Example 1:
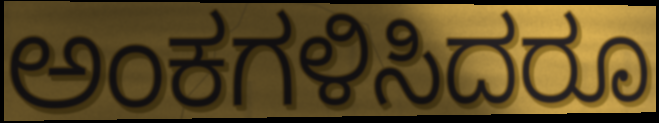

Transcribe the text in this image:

ಅಂಕಗಳಿಸಿದರೂ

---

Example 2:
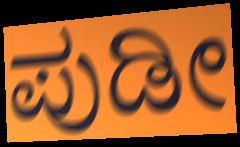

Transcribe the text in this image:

ಪುಡೀ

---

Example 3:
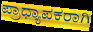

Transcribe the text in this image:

ಪ್ರಾಧ್ಯಾಪಕರಾಗಿ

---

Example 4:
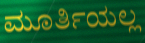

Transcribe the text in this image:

ಮೂರ್ತಿಯಲ್ಲ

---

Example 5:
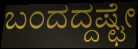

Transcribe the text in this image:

ಬಂದದ್ದಷ್ಟೇ